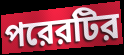
পরেরটির